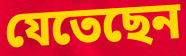
যেতেছেন